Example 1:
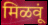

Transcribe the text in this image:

मिळवूं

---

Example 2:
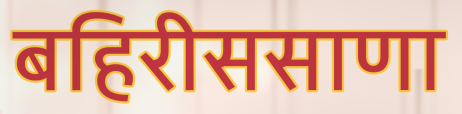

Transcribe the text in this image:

बहिरीससाणा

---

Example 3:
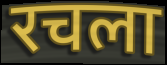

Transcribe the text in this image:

रचला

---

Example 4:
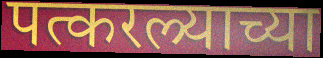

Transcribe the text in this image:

पत्करल्याच्या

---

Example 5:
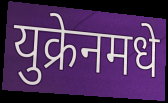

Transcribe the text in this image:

युक्रेनमधे